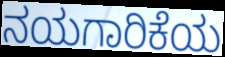
ನಯಗಾರಿಕೆಯ